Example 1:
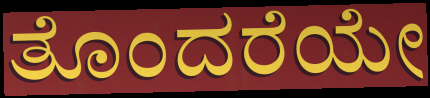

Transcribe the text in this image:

ತೊಂದರೆಯೇ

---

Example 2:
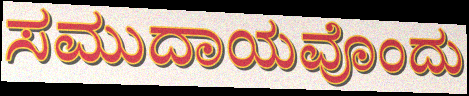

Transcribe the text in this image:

ಸಮುದಾಯವೊಂದು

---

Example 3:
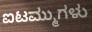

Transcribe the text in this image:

ಐಟಮ್ಮುಗಳು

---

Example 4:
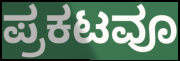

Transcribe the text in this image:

ಪ್ರಕಟವೂ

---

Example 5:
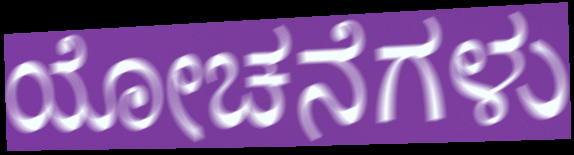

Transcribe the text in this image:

ಯೋಚನೆಗಳು